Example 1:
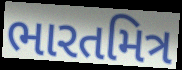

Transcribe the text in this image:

ભારતમિત્ર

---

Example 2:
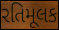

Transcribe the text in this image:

રતિમૂલક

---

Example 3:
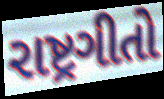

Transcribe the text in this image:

રાષ્ટ્રગીતો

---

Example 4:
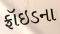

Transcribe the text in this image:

ફ્રૉઇડના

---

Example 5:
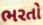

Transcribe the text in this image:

ભરતો